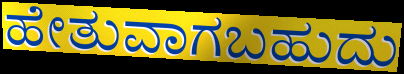
ಹೇತುವಾಗಬಹುದು